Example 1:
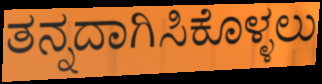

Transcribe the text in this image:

ತನ್ನದಾಗಿಸಿಕೊಳ್ಳಲು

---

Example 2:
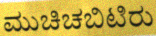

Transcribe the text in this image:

ಮುಚಿಚಬಿಟಿರು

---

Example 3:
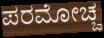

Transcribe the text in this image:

ಪರಮೋಚ್ಚ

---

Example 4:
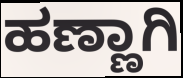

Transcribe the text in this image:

ಹಣ್ಣಾಗಿ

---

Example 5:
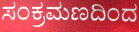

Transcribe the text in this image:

ಸಂಕ್ರಮಣದಿಂದ